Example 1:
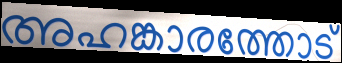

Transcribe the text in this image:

അഹങ്കാരത്തോട്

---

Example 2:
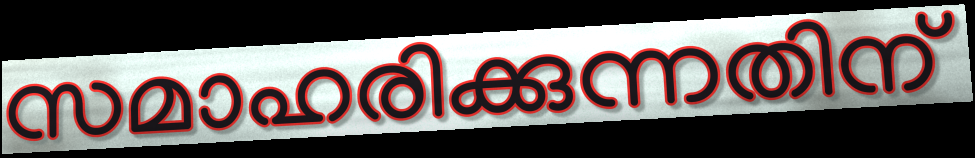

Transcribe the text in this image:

സമാഹരിക്കുന്നതിന്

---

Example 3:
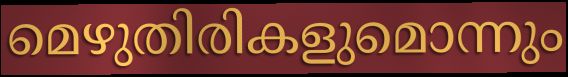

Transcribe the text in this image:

മെഴുതിരികളുമൊന്നും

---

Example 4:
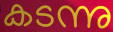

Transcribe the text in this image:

കടന്നു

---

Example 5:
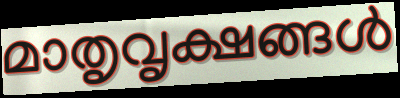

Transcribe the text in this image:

മാതൃവൃക്ഷങ്ങൾ